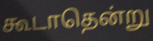
கூடாதென்று